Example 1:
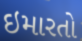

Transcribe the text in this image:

ઇમારતો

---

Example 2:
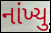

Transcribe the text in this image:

નાંખ્યુ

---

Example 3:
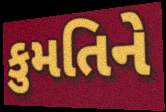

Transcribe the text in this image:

કુમતિને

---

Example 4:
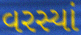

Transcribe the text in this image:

વરસ્યાં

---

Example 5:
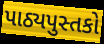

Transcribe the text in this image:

પાઠ્યપુસ્તકો